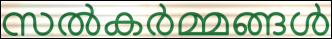
സൽകർമ്മങ്ങൾ